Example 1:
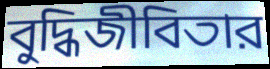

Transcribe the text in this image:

বুদ্ধিজীবিতার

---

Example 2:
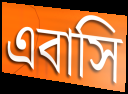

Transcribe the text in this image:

এবাসি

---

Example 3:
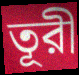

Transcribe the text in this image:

তূরী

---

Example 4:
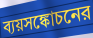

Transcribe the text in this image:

ব্যয়সঙ্কোচনের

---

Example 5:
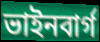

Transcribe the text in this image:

ভাইনবার্গ